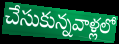
చేసుకున్నవాళ్లలో